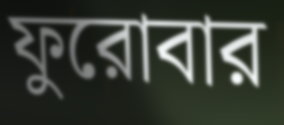
ফুরোবার